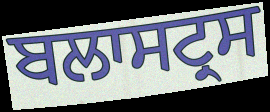
ਬਲਾਸਟ੍ਰਸ